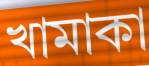
খামাকা